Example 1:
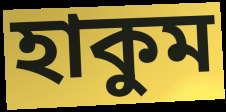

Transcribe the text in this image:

হাকুম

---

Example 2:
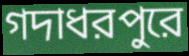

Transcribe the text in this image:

গদাধরপুরে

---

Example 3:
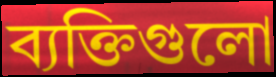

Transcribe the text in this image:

ব্যক্তিগুলো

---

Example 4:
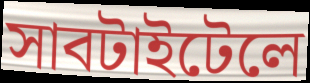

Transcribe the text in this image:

সাবটাইটেলে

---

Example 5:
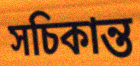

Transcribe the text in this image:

সচিকান্ত